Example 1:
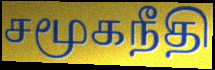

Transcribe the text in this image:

சமூகநீதி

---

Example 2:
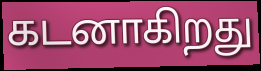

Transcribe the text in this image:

கடனாகிறது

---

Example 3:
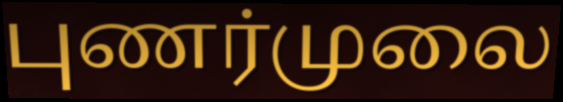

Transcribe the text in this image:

புணர்முலை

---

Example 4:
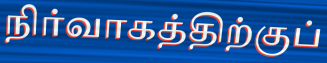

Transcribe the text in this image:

நிர்வாகத்திற்குப்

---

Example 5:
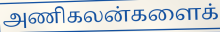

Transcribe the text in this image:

அணிகலன்களைக்